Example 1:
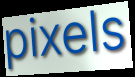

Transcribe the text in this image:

pixels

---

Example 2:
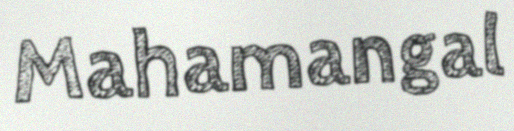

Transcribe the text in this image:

Mahamangal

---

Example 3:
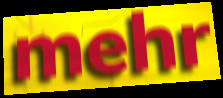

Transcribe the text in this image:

mehr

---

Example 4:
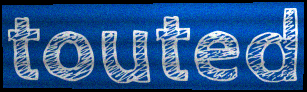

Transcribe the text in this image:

touted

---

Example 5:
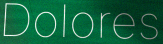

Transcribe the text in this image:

Dolores